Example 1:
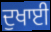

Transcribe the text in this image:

ਦੁਖਾਈ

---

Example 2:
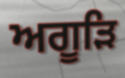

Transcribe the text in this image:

ਅਗੂੜਿ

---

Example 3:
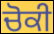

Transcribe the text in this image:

ਚੋਕੀ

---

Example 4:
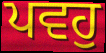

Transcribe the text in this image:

ਪਵਹੁ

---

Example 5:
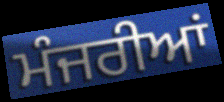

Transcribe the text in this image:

ਮੰਜਰੀਆਂ